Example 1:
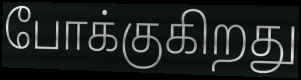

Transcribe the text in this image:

போக்குகிறது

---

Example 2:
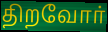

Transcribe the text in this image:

திறவோர்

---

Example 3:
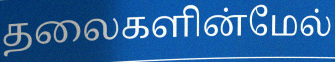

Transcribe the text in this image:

தலைகளின்மேல்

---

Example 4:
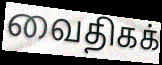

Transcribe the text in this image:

வைதிகக்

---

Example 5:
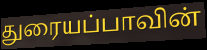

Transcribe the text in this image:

துரையப்பாவின்